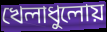
খেলাধুলোয়